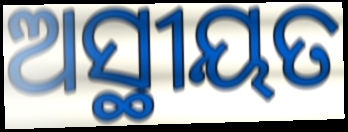
ଅସ୍ଥୀୟତ